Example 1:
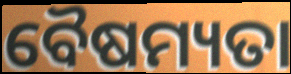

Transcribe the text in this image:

ବୈଷମ୍ୟତା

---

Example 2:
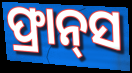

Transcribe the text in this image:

ଫ୍ରାନ୍‌ସ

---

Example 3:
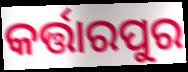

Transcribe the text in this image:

କର୍ତ୍ତାରପୁର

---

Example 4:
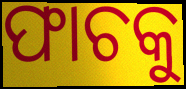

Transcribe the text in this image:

ଫାଚକୁ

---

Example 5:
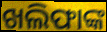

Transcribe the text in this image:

ଖଲିଫାଙ୍କ